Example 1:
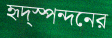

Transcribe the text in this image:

হৃদ্স্পন্দনের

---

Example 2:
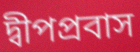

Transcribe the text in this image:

দ্বীপপ্রবাস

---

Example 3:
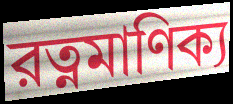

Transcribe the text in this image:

রত্নমাণিক্য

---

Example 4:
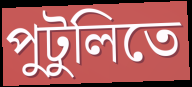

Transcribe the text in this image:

পুটুলিতে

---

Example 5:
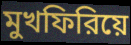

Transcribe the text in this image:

মুখফিরিয়ে